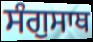
ਸੰਗੁਸਾਥ